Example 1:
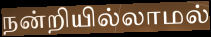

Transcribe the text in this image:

நன்றியில்லாமல்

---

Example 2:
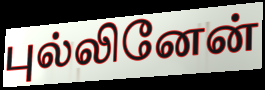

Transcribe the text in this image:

புல்லினேன்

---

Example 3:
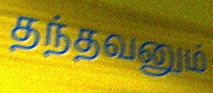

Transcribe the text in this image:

தந்தவனும்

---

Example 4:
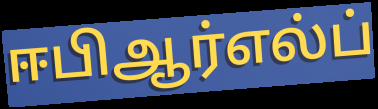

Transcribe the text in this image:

ஈபிஆர்எல்ப்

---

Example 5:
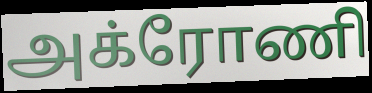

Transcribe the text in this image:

அக்ரோணி